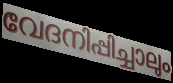
വേദനിപ്പിച്ചാലും